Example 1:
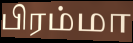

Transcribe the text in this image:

பிரம்மா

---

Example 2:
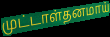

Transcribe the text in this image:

முட்டாள்தனமாய்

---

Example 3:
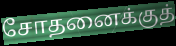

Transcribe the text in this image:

சோதனைக்குத்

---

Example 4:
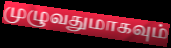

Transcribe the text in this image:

முழுவதுமாகவும்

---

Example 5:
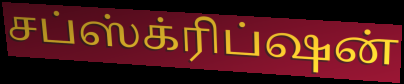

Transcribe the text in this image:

சப்ஸ்க்ரிப்ஷன்